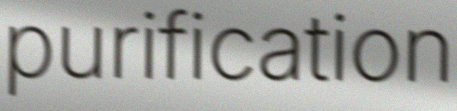
purification